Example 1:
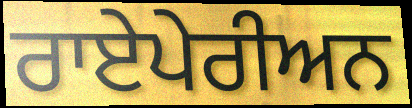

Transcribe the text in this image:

ਰਾਏਪੇਰੀਅਨ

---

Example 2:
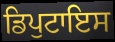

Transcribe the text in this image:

ਡਿਪੁਟਾਇਸ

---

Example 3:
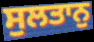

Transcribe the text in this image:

ਸੁਲਤਾਨੁ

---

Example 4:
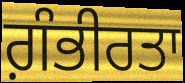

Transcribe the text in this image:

ਗ਼ੰਭੀਰਤਾ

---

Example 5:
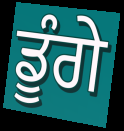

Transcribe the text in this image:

ਡੂੰਗੇ